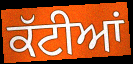
ਕੱਟੀਆਂ